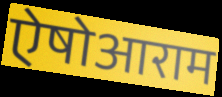
ऐषोआराम